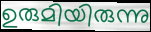
ഉരുമിയിരുന്നു